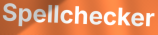
Spellchecker